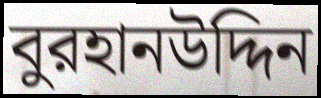
বুরহানউদ্দিন